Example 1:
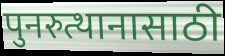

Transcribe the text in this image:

पुनरुत्थानासाठी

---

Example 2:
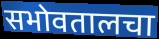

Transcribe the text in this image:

सभोवतालचा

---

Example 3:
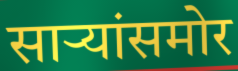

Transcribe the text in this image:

साऱ्यांसमोर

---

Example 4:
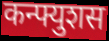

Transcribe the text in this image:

कन्फ्युशस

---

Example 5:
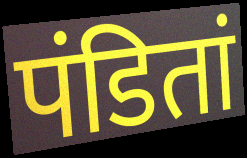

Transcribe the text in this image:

पंडितां